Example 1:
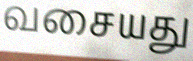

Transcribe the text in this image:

வசையது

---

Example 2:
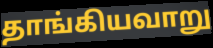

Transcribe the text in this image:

தாங்கியவாறு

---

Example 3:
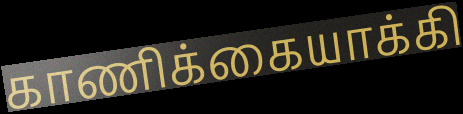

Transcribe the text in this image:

காணிக்கையாக்கி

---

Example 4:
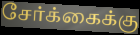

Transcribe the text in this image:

சேர்க்கைக்கு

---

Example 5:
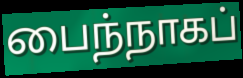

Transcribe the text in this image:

பைந்நாகப்